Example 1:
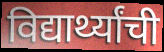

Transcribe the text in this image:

विद्यार्थ्‍यांची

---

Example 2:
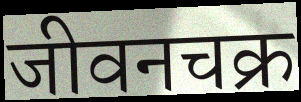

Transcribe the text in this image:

जीवनचक्र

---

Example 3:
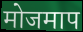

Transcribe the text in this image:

मोजमाप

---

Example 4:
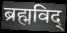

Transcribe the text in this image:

ब्रह्मविद्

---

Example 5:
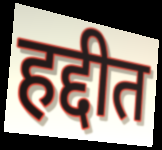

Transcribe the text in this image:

हद्दीत